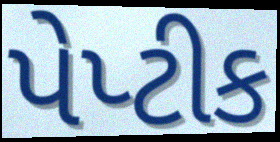
પેપ્ટીક